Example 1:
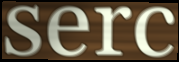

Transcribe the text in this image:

serc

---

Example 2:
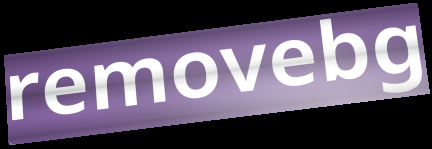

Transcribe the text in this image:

removebg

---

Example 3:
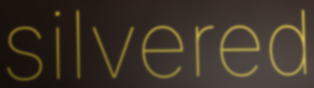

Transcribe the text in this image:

silvered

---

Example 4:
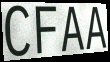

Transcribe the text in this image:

CFAA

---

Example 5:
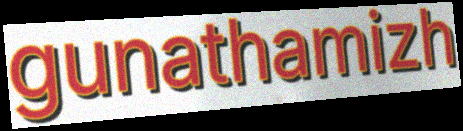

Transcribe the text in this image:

gunathamizh